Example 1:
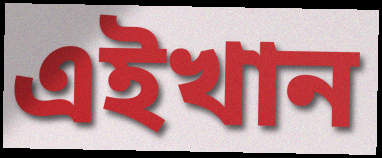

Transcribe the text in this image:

এইখান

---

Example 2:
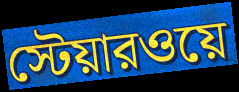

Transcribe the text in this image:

স্টেয়ারওয়ে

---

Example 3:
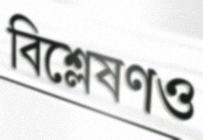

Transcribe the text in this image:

বিশ্লেষণও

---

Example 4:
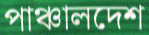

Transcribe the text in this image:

পাঞ্চালদেশ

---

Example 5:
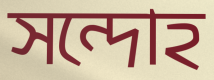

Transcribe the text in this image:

সন্দোহ